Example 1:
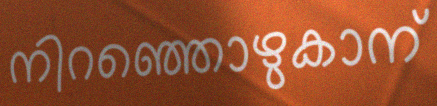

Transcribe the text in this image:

നിറഞ്ഞൊഴുകാന്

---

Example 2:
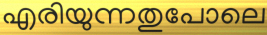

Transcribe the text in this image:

എരിയുന്നതുപോലെ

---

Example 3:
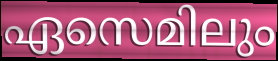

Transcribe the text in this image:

ഏസെമിലും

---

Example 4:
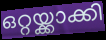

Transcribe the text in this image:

ഒറ്റയ്ക്കാക്കി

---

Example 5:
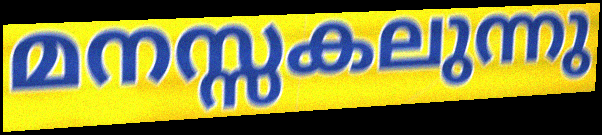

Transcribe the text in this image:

മനസ്സകലുന്നു